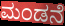
ಮಂಡನೆ